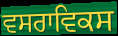
ਵਸਰਾਵਿਕਸ